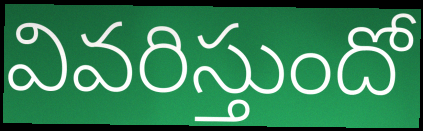
వివరిస్తుందో